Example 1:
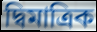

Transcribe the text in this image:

দ্বিমাত্রিক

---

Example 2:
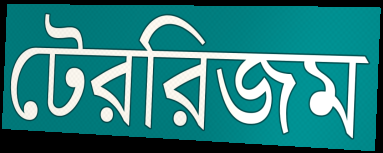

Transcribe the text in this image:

টেররিজম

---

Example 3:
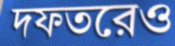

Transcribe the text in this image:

দফতরেও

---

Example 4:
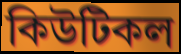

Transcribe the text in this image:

কিউটিকল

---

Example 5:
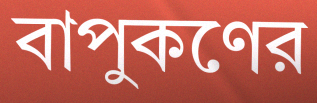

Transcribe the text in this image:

বাপুকণের